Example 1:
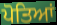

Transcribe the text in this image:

ਪੋਤਿਆਂ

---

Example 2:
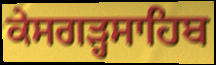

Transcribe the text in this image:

ਕੇਸਗੜ੍ਹਸਾਹਿਬ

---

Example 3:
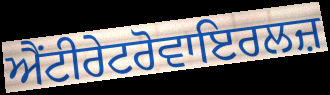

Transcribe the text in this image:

ਐਂਟੀਰੇਟਰੋਵਾਇਰਲਜ਼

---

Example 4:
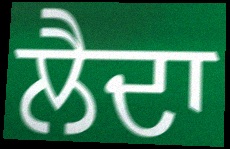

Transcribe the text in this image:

ਲੈਦਾ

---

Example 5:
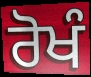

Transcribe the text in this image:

ਰੋਖੰ